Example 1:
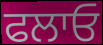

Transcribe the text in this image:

ਫਲਾਓ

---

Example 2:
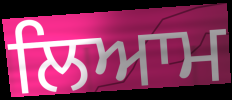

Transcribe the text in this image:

ਲਿਆਮ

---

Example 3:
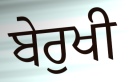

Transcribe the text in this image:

ਬੇਰੁਖੀ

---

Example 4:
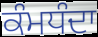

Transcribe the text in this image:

ਕੰਮਧੰਦਾ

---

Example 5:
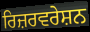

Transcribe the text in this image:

ਰਿਜ਼ਰਵਰੇਸ਼ਨ